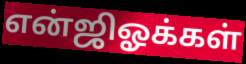
என்ஜிஓக்கள்